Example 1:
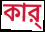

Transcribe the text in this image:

কার্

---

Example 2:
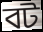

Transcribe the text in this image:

বট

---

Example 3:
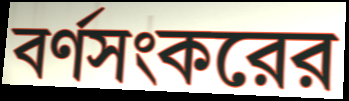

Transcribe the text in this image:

বর্ণসংকরের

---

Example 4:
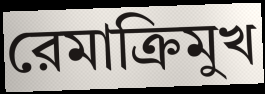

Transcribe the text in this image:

রেমাক্রিমুখ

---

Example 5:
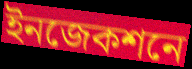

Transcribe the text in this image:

ইনজেকশনে